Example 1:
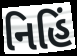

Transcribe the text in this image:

નિહિં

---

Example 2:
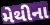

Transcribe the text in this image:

મેથીના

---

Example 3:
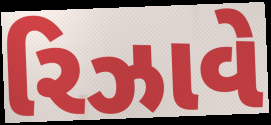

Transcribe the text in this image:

રિઝાવે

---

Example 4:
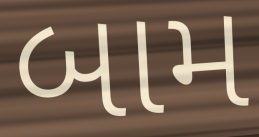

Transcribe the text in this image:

બામ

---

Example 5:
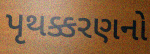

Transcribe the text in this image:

પૃથક્કરણનો